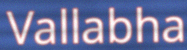
Vallabha